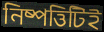
নিষ্পত্তিটিই